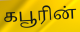
கபூரின்